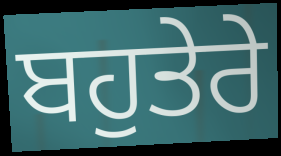
ਬਹੁਤੇਰੇ